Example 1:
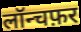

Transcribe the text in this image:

लॉन्चफ़र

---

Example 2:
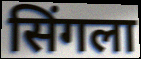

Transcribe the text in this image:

सिंगला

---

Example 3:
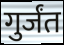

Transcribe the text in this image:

गुर्जंत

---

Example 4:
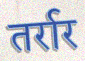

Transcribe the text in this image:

तर्रार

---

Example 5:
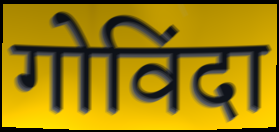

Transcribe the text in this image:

गोविंदा